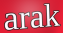
arak